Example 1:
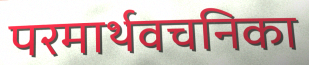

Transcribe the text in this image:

परमार्थवचनिका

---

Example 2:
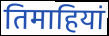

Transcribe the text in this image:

तिमाहियां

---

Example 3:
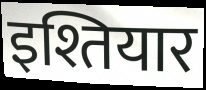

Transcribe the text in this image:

इश्तियार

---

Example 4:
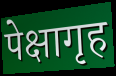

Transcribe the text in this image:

पेक्षागृह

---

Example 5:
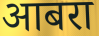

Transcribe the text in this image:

आबरा